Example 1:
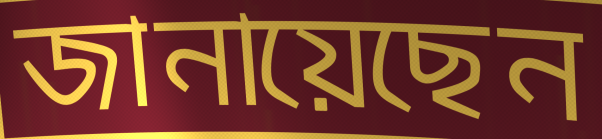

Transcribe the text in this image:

জানায়েছেন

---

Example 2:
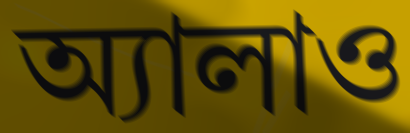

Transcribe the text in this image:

অ্যালাও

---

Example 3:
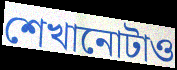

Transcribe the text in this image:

শেখানোটাও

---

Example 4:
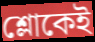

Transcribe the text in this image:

শ্লোকেই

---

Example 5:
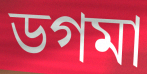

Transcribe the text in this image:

ডগমা